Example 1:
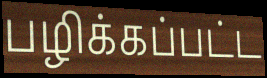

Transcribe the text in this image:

பழிக்கப்பட்ட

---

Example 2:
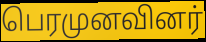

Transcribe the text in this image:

பெரமுனவினர்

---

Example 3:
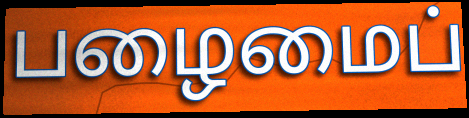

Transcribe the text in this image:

பழைமைப்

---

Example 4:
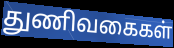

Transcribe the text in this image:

துணிவகைகள்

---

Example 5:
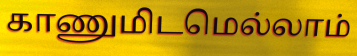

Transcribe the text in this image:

காணுமிடமெல்லாம்